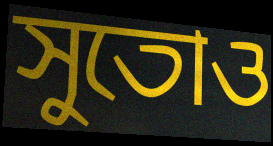
সুতোও